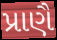
પ્રાણૈ